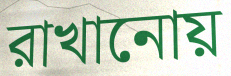
রাখানোয়